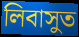
লিবাসুত